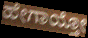
ಹೇಗಾಯ್ತೋ